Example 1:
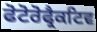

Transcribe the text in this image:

ਫੋਟੋਰੋਫ੍ਰੈਕਟਿਵ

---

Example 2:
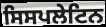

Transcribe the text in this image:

ਸਿਸਪਲੇਟਿਨ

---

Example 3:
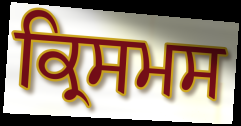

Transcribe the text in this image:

ਕ੍ਰਿਸਮਸ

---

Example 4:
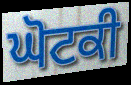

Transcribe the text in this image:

ਘੋਟਕੀ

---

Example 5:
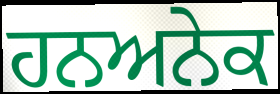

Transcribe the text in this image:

ਹਨਅਨੇਕ